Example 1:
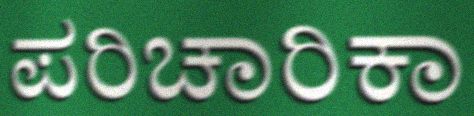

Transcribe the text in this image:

ಪರಿಚಾರಿಕಾ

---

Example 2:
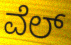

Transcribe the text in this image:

ವೆಲ್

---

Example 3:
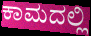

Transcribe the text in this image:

ಕಾಮದಲ್ಲಿ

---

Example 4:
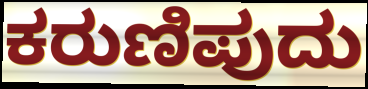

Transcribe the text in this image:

ಕರುಣಿಪುದು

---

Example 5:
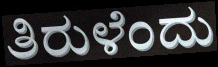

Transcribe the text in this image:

ತಿರುಳೆಂದು